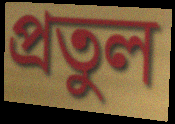
প্রতুল